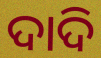
ଦାଦି